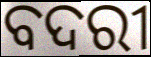
ବଦରୀ